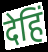
देहिं